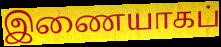
இணையாகப்